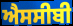
ਐਸਸੀਬੀ